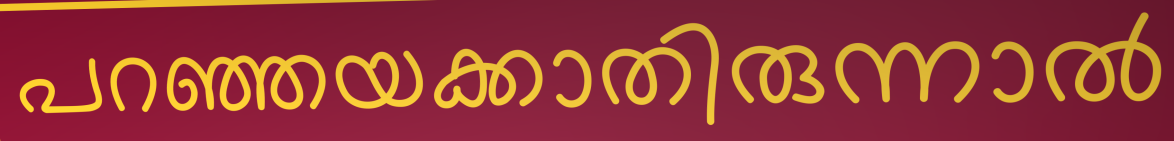
പറഞ്ഞയക്കാതിരുന്നാൽ